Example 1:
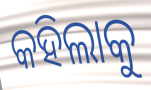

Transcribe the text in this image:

କହିଲାକୁ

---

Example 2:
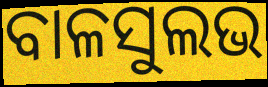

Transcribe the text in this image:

ବାଳସୁଲଭ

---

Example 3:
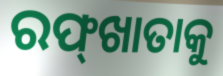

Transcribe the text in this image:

ରଫ୍‌ଖାତାକୁ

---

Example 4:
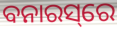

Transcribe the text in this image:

ବନାରସ୍‌ରେ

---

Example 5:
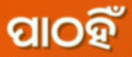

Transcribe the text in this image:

ପାଠହିଁ